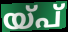
യ്പ്